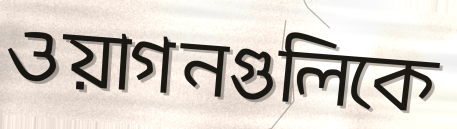
ওয়াগনগুলিকে